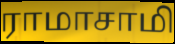
ராமாசாமி